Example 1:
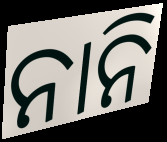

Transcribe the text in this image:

ନାନି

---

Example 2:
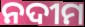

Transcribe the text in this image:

ନଦୀମ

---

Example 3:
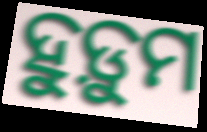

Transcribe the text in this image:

ହୁଡ଼ୁମ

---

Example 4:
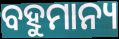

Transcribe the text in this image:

ବହୁମାନ୍ୟ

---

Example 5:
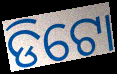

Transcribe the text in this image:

ଡିଟୋ